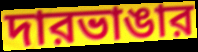
দারভাঙার